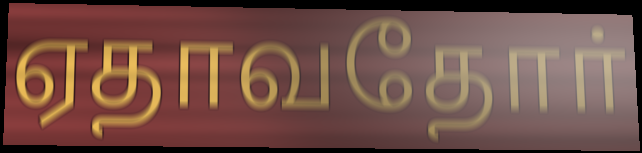
ஏதாவதோர்